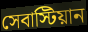
সেবাস্টিয়ান